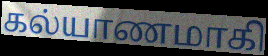
கல்யாணமாகி